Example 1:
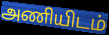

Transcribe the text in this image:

அணியிடம்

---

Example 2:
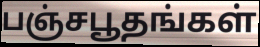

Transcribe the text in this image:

பஞ்சபூதங்கள்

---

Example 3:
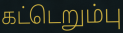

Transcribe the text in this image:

கட்டெறும்பு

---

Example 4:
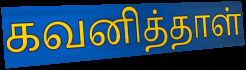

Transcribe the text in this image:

கவனித்தாள்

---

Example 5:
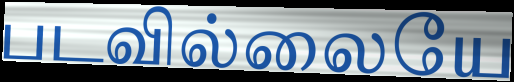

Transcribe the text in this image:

படவில்லையே